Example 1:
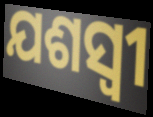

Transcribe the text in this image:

ଯଶସ୍ଵୀ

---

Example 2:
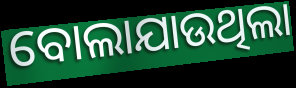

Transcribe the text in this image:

ବୋଲାଯାଉଥିଲା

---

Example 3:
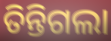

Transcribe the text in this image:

ତିନ୍ତିଗଲା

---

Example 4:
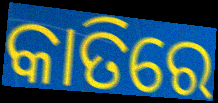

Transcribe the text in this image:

କାତିରେ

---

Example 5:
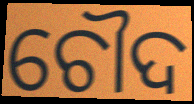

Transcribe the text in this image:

ଚୌଦ